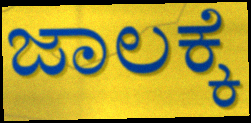
ಜಾಲಕ್ಕೆ